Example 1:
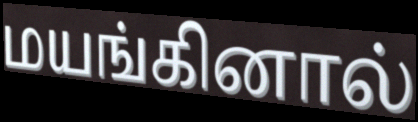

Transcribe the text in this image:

மயங்கினால்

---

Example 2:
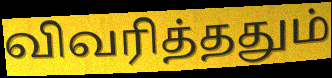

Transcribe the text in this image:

விவரித்ததும்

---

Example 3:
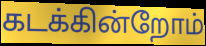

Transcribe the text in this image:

கடக்கின்றோம்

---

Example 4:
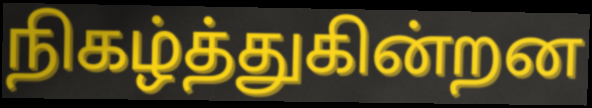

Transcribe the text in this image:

நிகழ்த்துகின்றன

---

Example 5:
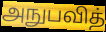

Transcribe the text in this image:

அநுபவித்